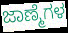
ಜಾಣ್ಮೆಗಳ